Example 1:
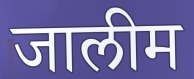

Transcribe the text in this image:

जालीम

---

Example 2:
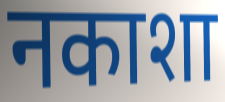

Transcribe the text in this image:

नकाशा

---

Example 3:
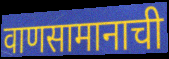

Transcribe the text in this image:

वाणसामानाची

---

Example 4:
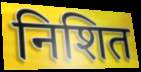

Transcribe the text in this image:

निशित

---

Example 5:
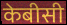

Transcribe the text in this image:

केबीसी